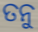
ତନୁ